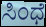
ಸಿಂಧೆ